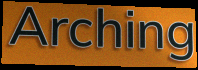
Arching